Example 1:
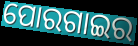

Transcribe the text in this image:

ପୋରଗାଇର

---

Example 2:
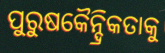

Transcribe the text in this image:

ପୁରୁଷକୈନ୍ଦ୍ରିକତାକୁ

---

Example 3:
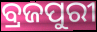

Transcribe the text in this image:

ବ୍ରଜପୁରୀ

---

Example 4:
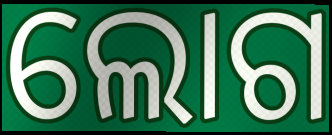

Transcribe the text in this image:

ଲୋଗ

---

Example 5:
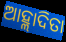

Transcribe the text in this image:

ଆହ୍ଲାଦିତା